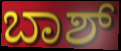
ಬಾಶ್